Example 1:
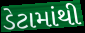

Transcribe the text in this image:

ડેટામાંથી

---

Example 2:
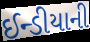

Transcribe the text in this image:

ઈન્ડીયાની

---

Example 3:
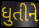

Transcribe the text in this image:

ધુતીને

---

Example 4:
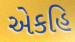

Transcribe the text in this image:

એકહિ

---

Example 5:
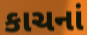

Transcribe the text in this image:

કાચનાં